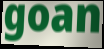
goan